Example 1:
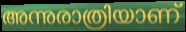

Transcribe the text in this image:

അന്നുരാത്രിയാണ്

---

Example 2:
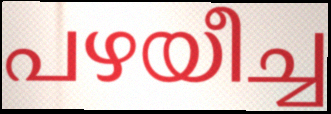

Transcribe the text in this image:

പഴയീച്ച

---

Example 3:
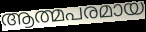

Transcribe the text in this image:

ആത്മപരമായ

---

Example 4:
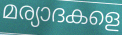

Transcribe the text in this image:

മര്യാദകളെ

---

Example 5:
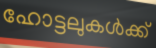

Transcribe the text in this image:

ഹോട്ടലുകൾക്ക്